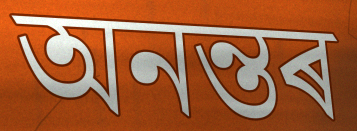
অনন্তৰ